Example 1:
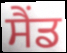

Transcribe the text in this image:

ਸੈਂਡ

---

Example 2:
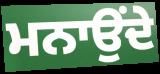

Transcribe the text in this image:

ਮਨਾਉਂਦੇ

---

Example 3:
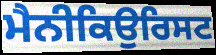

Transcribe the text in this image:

ਮੈਨੀਕਿਉਰਿਸਟ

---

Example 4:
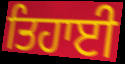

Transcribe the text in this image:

ਤਿਹਾਈ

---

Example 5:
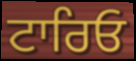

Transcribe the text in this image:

ਟਾਰਿਓ